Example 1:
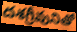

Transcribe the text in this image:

దశగ్రీవునితో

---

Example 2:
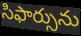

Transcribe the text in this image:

సిఫార్సును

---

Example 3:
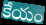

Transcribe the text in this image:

కేయం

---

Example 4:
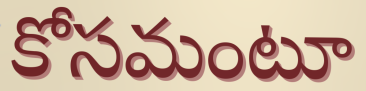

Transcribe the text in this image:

కోసమంటూ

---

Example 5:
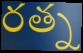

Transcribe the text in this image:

రత్న